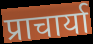
प्राचार्या